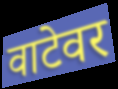
वाटेवर